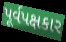
પૂર્વપક્ષકાર